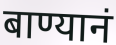
बाण्यानं